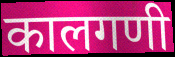
कालगणी